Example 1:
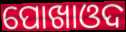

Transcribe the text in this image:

ପୋଖାଓଦ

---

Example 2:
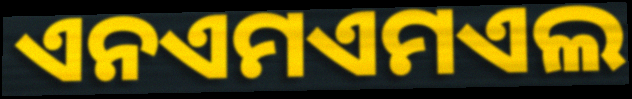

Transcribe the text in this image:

ଏନଏମଏମଏଲ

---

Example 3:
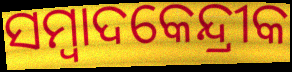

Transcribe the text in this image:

ସମ୍ୱାଦକେନ୍ଦ୍ରୀକ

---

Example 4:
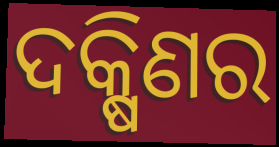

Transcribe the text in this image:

ଦକ୍ଷିଣର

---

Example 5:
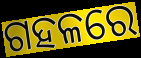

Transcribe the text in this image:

ଗହଳରେ